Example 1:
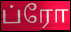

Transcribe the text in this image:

ப்ரோ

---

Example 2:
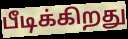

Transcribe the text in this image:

பீடிக்கிறது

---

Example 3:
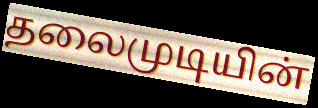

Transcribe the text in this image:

தலைமுடியின்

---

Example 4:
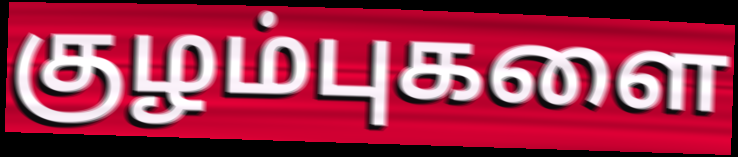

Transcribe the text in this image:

குழம்புகளை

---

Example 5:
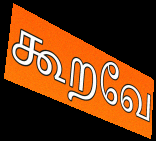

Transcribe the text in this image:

கூறவே